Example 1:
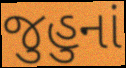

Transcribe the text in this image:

જુહુનાં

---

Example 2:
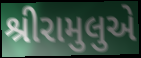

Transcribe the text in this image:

શ્રીરામુલુએ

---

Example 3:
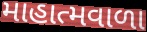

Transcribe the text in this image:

માહાત્મવાળા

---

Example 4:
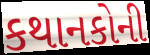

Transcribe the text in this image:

કથાનકોની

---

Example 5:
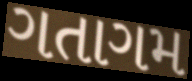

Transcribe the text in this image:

ગતાગમ